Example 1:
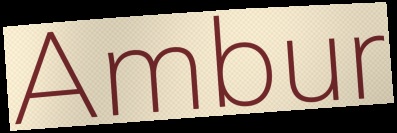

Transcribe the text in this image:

Ambur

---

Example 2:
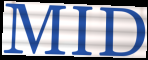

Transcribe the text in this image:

MID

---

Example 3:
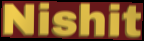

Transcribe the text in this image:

Nishit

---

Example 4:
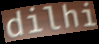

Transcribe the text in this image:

dilhi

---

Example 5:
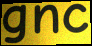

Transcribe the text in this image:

gnc